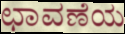
ಛಾವಣೆಯ